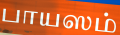
பாயஸம்